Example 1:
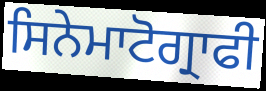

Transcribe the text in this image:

ਸਿਨੇਮਾਟੋਗ੍ਰਾਫੀ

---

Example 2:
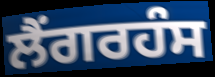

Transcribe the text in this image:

ਲੈਂਗਰਹੰਸ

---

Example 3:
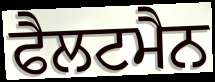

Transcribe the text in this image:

ਫੈਲਟਮੈਨ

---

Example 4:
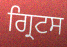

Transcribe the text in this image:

ਗ੍ਰਿਟਸ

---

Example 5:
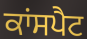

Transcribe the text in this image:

ਕਾਂਸਪੈਟ